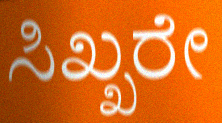
ಸಿಖ್ಖರೇ